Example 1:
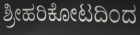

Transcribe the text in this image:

ಶ್ರೀಹರಿಕೋಟದಿಂದ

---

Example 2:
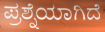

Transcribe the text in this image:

ಪ್ರಶ್ನೆಯಾಗಿದೆ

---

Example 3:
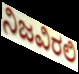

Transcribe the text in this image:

ನಿಜವಿರಲಿ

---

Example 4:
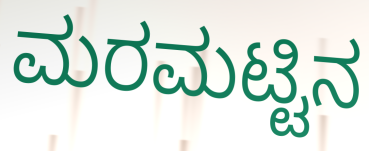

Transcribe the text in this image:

ಮರಮಟ್ಟಿನ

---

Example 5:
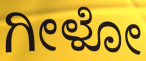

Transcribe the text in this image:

ಗೀಳೋ